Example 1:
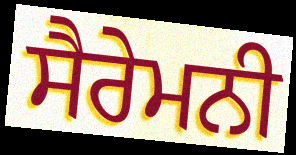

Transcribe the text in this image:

ਸੈਰੇਮਨੀ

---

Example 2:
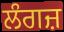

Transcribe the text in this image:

ਲੰਗਜ਼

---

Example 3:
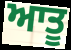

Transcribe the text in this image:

ਆਤੂ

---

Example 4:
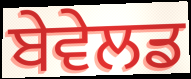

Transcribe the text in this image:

ਬੇਵੇਲਡ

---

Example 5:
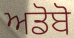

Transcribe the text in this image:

ਅਡੋਬੋ